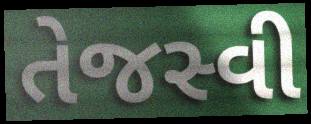
તેજસ્વી